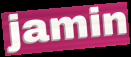
jamin